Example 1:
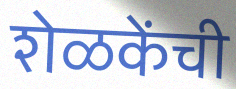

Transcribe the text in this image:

शेळकेंची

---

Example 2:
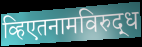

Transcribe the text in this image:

व्हिएतनामविरुद्ध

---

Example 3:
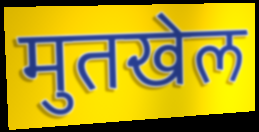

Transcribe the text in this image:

मुतखेल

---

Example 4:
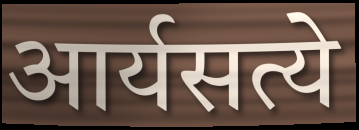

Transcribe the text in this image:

आर्यसत्ये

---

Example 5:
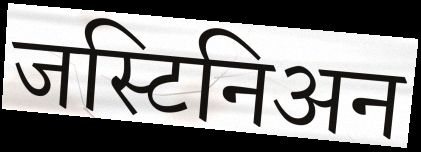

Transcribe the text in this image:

जस्टिनिअन